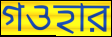
গওহার